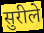
सुरीले